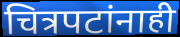
चित्रपटांनाही